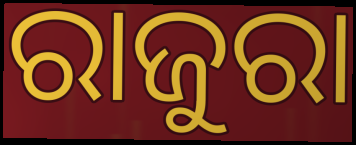
ରାଜୁରା